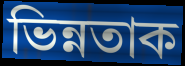
ভিন্নতাক